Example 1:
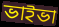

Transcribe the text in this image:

ভাইভা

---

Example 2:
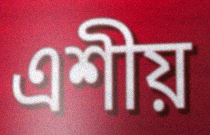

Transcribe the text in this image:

এশীয়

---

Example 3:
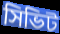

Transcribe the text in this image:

সিভিট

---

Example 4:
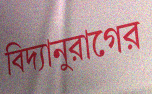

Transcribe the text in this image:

বিদ্যানুরাগের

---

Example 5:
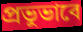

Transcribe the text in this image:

প্রভুভাবে